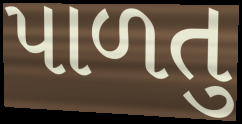
પાળતુ